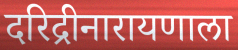
दरिद्रीनारायणाला